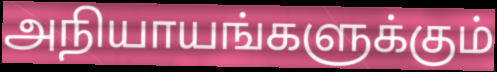
அநியாயங்களுக்கும்